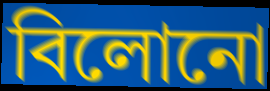
বিলোনো